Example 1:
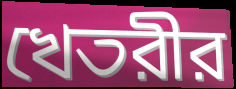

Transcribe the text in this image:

খেতরীর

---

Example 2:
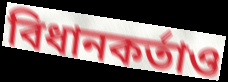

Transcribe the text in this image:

বিধানকর্তাও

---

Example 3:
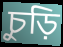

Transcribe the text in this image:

চুড়ি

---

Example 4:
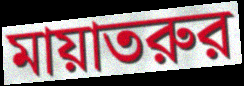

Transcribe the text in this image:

মায়াতরুর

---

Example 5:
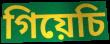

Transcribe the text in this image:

গিয়েচি